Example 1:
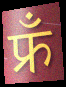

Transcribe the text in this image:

फ्रँ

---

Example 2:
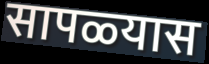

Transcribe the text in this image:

सापळ्यास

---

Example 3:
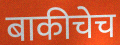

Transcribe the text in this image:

बाकीचेच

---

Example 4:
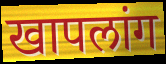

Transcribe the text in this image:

खापलांग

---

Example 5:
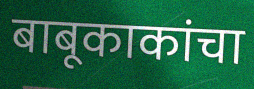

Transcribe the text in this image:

बाबूकाकांचा